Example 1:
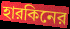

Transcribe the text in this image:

হারকিনের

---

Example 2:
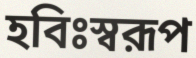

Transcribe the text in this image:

হবিঃস্বরূপ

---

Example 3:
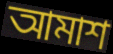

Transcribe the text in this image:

আমাশ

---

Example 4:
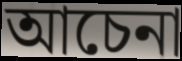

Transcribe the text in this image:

আচেনা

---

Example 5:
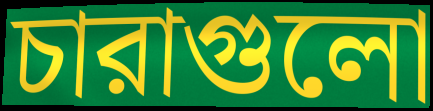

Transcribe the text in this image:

চারাগুলো